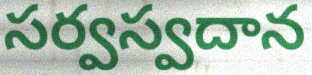
సర్వస్వదాన